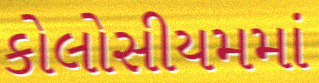
કોલોસીયમમાં